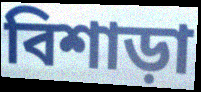
বিশাড়া